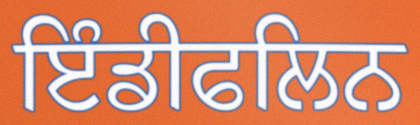
ਇੰਡੀਫਲਿਨ